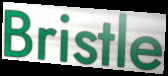
Bristle